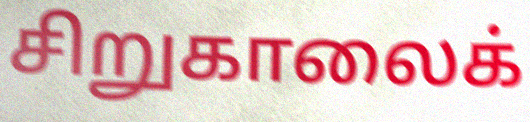
சிறுகாலைக்